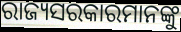
ରାଜ୍ୟସରକାରମାନଙ୍କୁ